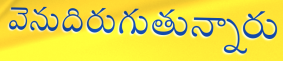
వెనుదిరుగుతున్నారు